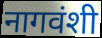
नागवंशी